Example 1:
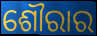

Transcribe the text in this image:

ଶୌରାର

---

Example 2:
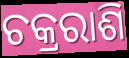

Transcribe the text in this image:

ଚକ୍ରରାଶି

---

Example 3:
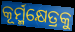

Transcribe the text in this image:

କୂର୍ମ୍ମକ୍ଷେତ୍ରକୁ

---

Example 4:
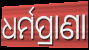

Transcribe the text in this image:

ଧର୍ମପ୍ରାଣା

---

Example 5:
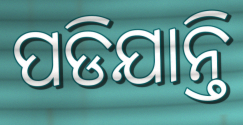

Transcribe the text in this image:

ପଡିଯାନ୍ତି